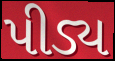
પીડ્ય